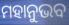
ମହାନୁଭବ